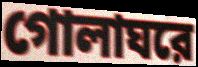
গোলাঘরে